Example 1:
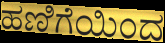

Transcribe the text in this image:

ಹಣಿಗೆಯಿಂದ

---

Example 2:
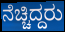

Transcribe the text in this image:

ನೆಚ್ಚಿದ್ದರು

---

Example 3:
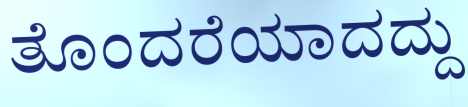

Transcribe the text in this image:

ತೊಂದರೆಯಾದದ್ದು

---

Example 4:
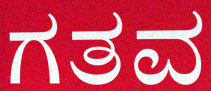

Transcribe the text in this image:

ಗತವ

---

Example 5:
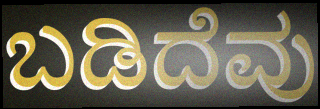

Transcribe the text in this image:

ಬಡಿದೆವು